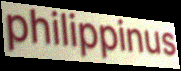
philippinus